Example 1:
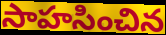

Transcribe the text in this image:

సాహసించిన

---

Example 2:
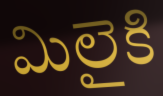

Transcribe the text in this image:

మిలైకి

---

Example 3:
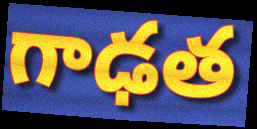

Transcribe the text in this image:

గాఢత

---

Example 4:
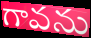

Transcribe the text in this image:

గావను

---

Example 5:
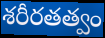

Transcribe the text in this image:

శరీరతత్వం